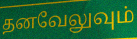
தனவேலுவும்